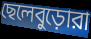
ছেলেবুড়োরা